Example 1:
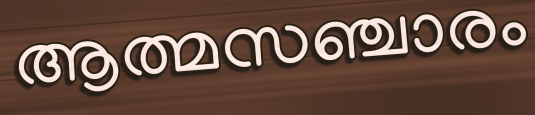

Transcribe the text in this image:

ആത്മസഞ്ചാരം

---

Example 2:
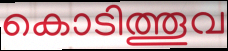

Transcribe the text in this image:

കൊടിത്തൂവ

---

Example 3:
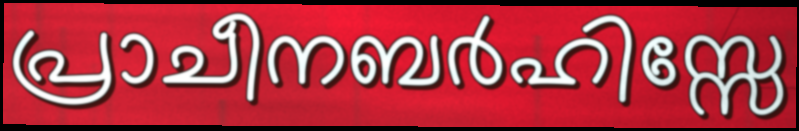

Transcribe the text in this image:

പ്രാചീനബർഹിസ്സേ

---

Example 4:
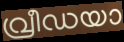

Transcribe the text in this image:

വ്രീഡയാ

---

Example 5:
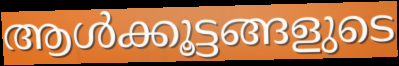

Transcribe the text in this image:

ആൾക്കൂട്ടങ്ങളുടെ